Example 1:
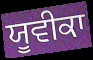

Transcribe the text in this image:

ਯੂਵੀਕਾ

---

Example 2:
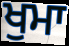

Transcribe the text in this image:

ਖੁਮਾ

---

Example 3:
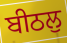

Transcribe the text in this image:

ਬੀਠਲੁ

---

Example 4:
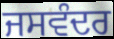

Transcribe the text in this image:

ਜਸਵੰਦਰ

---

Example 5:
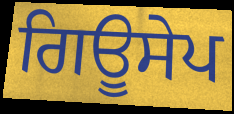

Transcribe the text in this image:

ਗਿਊਸੇਪ